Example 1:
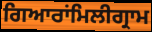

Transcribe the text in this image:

ਗਿਆਰਾਂਮਿਲੀਗ੍ਰਾਮ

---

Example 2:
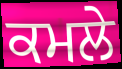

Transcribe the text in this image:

ਕਮਲੇ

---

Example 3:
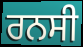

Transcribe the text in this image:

ਰਨਸੀ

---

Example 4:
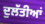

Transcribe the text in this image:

ਦੁਲੱਤੀਆਂ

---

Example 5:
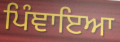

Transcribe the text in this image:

ਪਿੰਞਾਇਆ